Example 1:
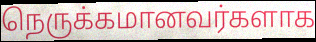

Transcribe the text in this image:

நெருக்கமானவர்களாக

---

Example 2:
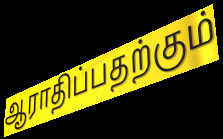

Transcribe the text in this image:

ஆராதிப்பதற்கும்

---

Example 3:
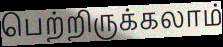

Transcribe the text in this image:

பெற்றிருக்கலாம்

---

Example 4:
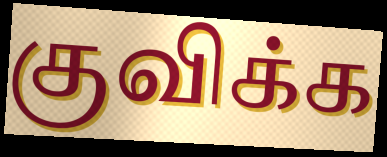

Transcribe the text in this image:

குவிக்க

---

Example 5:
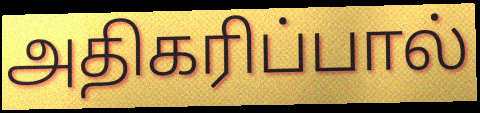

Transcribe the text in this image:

அதிகரிப்பால்